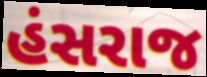
હંસરાજ